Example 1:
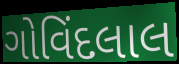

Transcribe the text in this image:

ગોવિંદલાલ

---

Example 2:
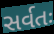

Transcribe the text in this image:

સર્વતઃ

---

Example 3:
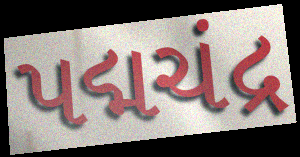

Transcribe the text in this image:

પદ્મચંદ્ર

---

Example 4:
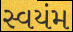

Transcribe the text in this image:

સ્વયંમ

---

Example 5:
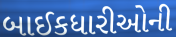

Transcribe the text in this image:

બાઈકધારીઓની